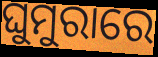
ଘୁମୁରାରେ